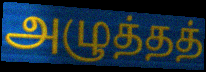
அழுத்தத்